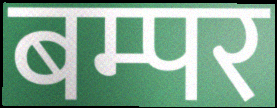
बम्पर